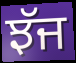
ਝੱਜ